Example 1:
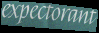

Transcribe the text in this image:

expectorant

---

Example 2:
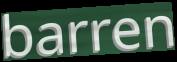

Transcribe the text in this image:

barren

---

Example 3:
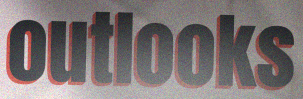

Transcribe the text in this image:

outlooks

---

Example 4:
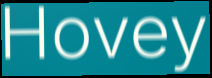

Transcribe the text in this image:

Hovey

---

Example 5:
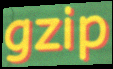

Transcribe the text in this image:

gzip